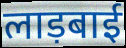
लाड़बाई